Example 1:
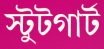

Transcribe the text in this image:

স্টুটগার্ট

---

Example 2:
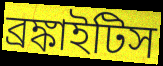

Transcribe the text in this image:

ব্রঙ্কাইটিস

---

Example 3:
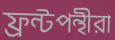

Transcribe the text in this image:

ফ্রন্টপন্থীরা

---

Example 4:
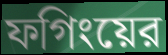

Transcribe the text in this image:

ফগিংয়ের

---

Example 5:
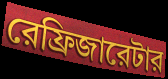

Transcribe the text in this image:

রেফ্রিজারেটার